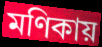
মণিকায়